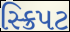
સ્ક્રિપટ